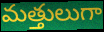
మత్తులుగా